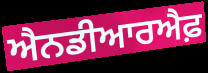
ਐਨਡੀਆਰਐਫ਼